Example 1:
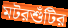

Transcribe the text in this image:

মটরশুঁটির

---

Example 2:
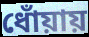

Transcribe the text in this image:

ধোঁয়ায়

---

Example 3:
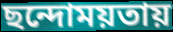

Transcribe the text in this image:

ছন্দোময়তায়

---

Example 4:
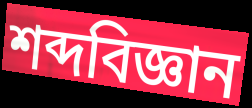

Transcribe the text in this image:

শব্দবিজ্ঞান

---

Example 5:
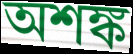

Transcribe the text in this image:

অশঙ্ক